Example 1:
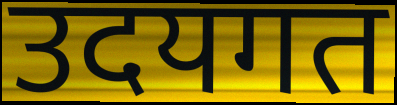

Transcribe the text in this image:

उदयगत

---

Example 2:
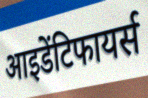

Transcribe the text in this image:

आइडेंटिफायर्स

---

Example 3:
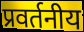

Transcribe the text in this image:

प्रवर्तनीय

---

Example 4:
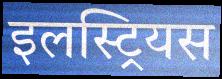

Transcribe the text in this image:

इलस्ट्रियस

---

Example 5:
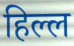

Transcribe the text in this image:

हिल्ल